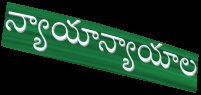
న్యాయాన్యాయాల